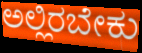
ಅಲ್ಲಿರಬೇಕು